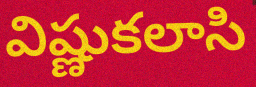
విష్ణుకలాసి